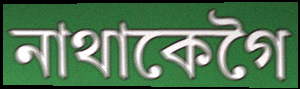
নাথাকেগৈ